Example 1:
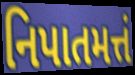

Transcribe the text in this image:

નિપાતમત્તં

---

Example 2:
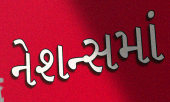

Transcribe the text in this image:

નેશન્સમાં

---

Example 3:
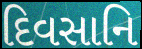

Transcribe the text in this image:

દિવસાનિ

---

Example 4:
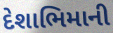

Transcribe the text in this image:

દેશાભિમાની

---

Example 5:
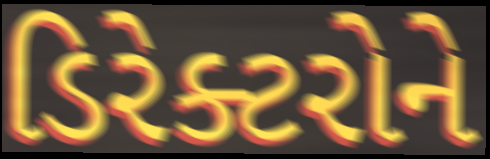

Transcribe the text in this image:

ડિરેક્ટરોને